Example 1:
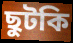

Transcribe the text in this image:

ছুটকি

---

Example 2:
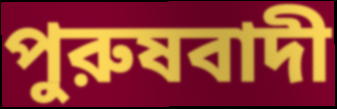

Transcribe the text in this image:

পুরুষবাদী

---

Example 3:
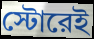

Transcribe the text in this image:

স্টোরেই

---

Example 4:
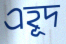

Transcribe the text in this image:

এহূদ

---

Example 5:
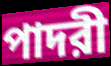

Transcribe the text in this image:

পাদরী